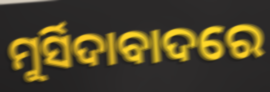
ମୁର୍ସିଦାବାଦରେ